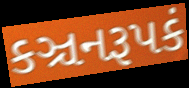
કઞ્ચનરૂપકં